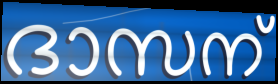
ദാസന്